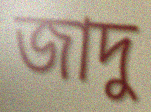
জাদু